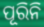
ପୂରିନି